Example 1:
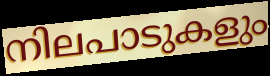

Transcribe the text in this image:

നിലപാടുകളും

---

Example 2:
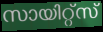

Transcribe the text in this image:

സായിറ്റ്സ്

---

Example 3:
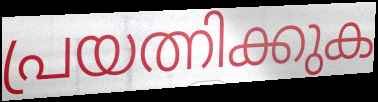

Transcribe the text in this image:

പ്രയത്നിക്കുക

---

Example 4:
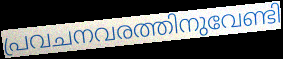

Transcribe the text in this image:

പ്രവചനവരത്തിനുവേണ്ടി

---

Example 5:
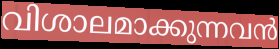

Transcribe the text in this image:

വിശാലമാക്കുന്നവൻ